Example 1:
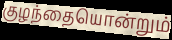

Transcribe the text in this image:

குழந்தையொன்றும்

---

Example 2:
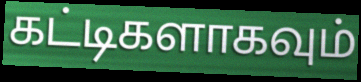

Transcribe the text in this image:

கட்டிகளாகவும்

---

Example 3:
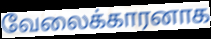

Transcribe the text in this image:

வேலைக்காரனாக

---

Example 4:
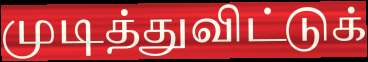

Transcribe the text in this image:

முடித்துவிட்டுக்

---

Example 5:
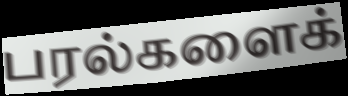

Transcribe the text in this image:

பரல்களைக்